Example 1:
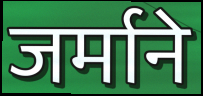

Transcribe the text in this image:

जर्माने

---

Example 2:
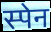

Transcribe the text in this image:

स्पेन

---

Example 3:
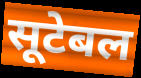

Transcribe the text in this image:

सूटेबल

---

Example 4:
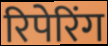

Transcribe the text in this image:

रिपेरिंग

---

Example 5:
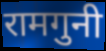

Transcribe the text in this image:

रामगुनी